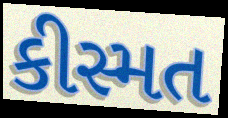
કીસ્મત